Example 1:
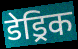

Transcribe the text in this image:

डेड्रिक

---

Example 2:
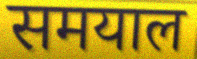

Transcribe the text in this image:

समयाल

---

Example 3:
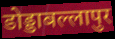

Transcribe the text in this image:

डोड्डाबल्लापुर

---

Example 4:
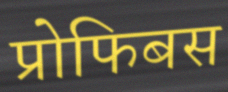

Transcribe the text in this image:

प्रोफिबस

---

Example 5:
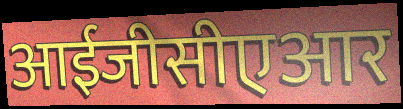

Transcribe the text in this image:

आईजीसीएआर